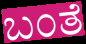
ಬಂತೆ